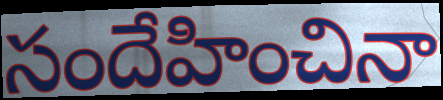
సందేహించినా